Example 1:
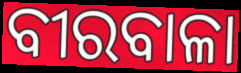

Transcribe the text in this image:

ବୀରବାଳା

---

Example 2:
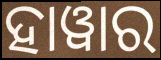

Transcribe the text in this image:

ହାୱାର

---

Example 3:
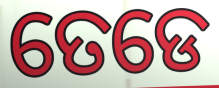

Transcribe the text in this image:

ତେଡେ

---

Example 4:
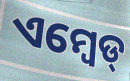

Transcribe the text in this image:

ଏମ୍ବେଡ୍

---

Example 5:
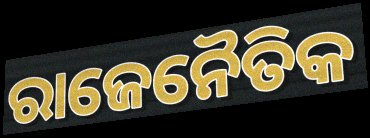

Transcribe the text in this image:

ରାଜେନୈତିକ